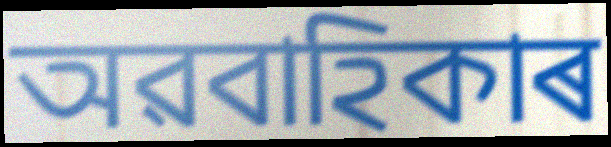
অৱবাহিকাৰ